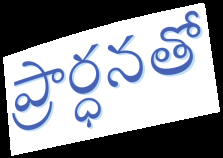
ప్రార్ధనతో